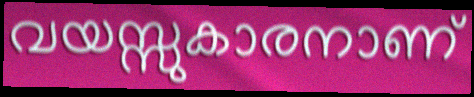
വയസ്സുകാരനാണ്